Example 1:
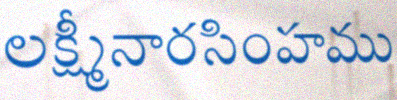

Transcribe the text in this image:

లక్ష్మీనారసింహము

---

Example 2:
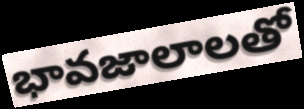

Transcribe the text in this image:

భావజాలాలతో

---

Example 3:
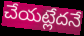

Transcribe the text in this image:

చేయట్లేదనే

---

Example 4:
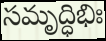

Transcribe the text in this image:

సమృద్ధిభిః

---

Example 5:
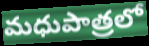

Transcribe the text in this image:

మధుపాత్రలో